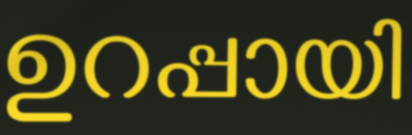
ഉറപ്പായി